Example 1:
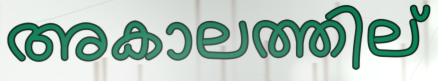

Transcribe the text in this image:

അകാലത്തില്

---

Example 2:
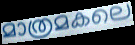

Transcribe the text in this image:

മാത്രമകലെ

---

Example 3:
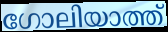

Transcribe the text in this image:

ഗോലിയാത്ത്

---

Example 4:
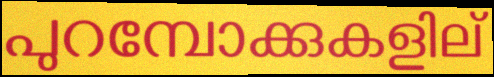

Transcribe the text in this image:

പുറമ്പോക്കുകളില്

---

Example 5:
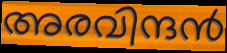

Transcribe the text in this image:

അരവിന്ദൻ